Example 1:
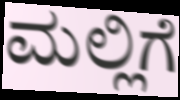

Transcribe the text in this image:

ಮಲ್ಲಿಗೆ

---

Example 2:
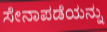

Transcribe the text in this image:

ಸೇನಾಪಡೆಯನ್ನು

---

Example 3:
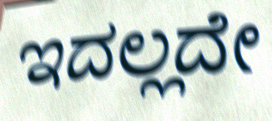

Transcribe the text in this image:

ಇದಲ್ಲದೇ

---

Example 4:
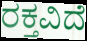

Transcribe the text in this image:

ರಕ್ತವಿದೆ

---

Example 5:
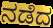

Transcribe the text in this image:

ನಡೆದ